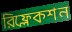
রিফ্লেকশন